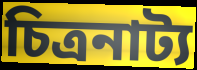
চিত্ৰনাট্য